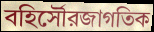
বহির্সৌরজাগতিক